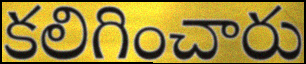
కలిగించారు